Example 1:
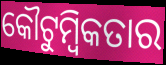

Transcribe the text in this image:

କୌଟୁମ୍ବିକତାର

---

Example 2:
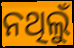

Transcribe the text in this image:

ନଥିଲୁଁ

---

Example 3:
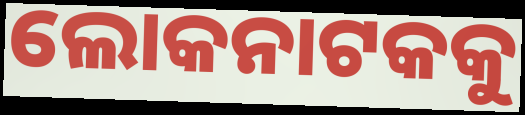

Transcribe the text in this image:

ଲୋକନାଟକକୁ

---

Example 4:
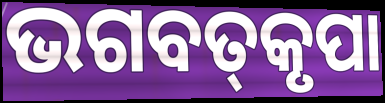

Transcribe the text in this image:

ଭଗବତ୍‌କୃପା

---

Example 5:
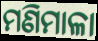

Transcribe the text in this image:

ମଣିମାଳା